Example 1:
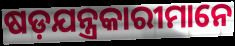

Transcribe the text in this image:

ଷଡ଼ଯନ୍ତ୍ରକାରୀମାନେ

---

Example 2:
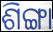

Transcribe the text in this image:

ଶିଙ୍ଗା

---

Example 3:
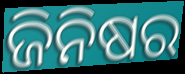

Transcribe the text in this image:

ଜିନିଷର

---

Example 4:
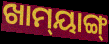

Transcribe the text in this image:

ଖାମ୍‌ୟାଙ୍ଗ୍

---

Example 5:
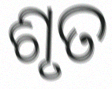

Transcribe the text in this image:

ଶୃତ